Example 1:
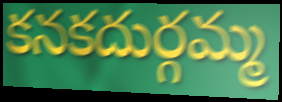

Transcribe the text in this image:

కనకదుర్గమ్మ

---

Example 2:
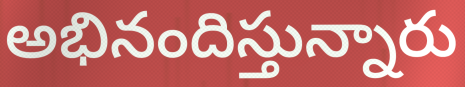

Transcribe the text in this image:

అభినందిస్తున్నారు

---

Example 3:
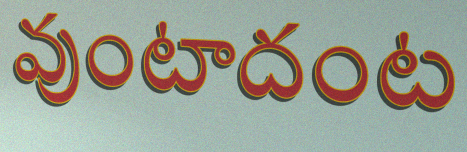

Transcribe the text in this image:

వుంటాదంట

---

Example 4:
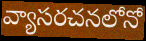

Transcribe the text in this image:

వ్యాసరచనలోనో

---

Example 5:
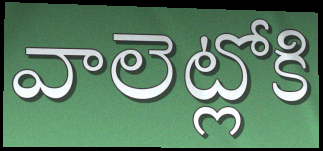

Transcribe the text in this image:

వాలెట్లోకి